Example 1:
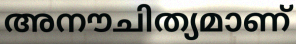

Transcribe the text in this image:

അനൗചിത്യമാണ്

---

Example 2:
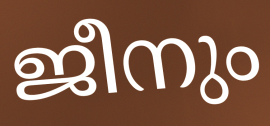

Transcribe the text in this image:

ജീനും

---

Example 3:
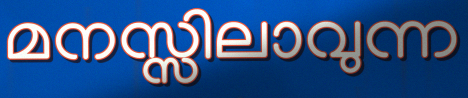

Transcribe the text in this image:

മനസ്സിലാവുന്ന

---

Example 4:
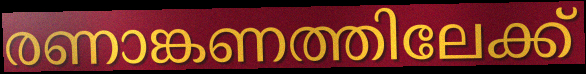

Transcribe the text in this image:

രണാങ്കണത്തിലേക്ക്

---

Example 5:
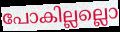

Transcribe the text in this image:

പോകില്ലല്ലൊ